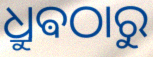
ଧ୍ରୁଵଠାରୁ